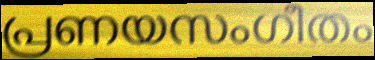
പ്രണയസംഗീതം